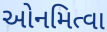
ઓનમિત્વા